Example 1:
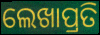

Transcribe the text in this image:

ଲେଖାପ୍ରତି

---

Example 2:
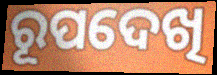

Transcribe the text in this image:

ରୂପଦେଖି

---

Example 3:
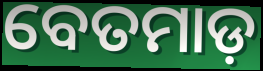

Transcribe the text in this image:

ବେତମାଡ଼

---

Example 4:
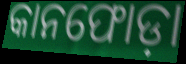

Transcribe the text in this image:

କାନଫୋଡ଼ା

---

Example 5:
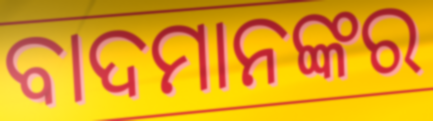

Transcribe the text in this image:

ବାଦମାନଙ୍କର